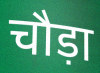
चौड़ा